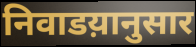
निवाडय़ानुसार